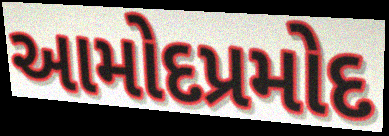
આમોદપ્રમોદ